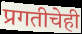
प्रगतीचेही